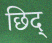
छिद्